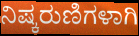
ನಿಷ್ಕರುಣಿಗಳಾಗಿ